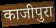
काजीपुरा